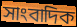
সাংবাদিক